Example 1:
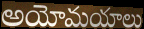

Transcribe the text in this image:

అయోమయాలు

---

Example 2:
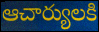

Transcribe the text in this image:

ఆచార్యులకి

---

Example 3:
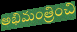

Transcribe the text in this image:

అభిమంత్రించి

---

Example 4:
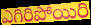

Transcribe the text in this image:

ఎగిరిపోయిరి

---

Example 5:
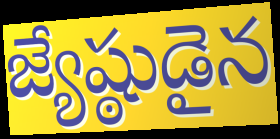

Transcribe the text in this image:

జ్యేష్ఠుడైన